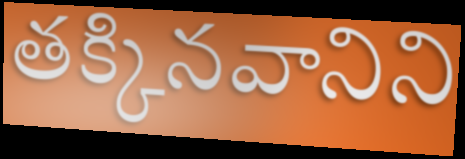
తక్కినవానిని